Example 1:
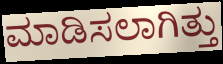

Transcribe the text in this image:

ಮಾಡಿಸಲಾಗಿತ್ತು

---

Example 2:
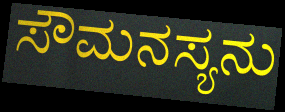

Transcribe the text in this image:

ಸೌಮನಸ್ಯನು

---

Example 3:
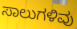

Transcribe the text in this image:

ಸಾಲುಗಳಿವು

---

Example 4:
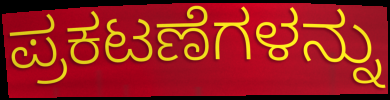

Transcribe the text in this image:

ಪ್ರಕಟಣೆಗಳನ್ನು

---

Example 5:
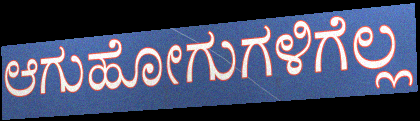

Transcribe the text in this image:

ಆಗುಹೋಗುಗಳಿಗೆಲ್ಲ